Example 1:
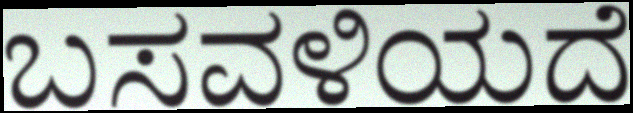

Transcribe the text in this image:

ಬಸವಳಿಯದೆ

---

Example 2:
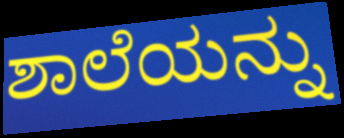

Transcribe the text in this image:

ಶಾಲೆಯನ್ನು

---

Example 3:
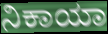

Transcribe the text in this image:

ನಿಕಾಯಾ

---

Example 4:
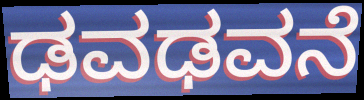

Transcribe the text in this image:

ಢವಢವನೆ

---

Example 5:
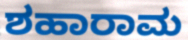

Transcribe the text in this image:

ಶಹಾರಾಮ